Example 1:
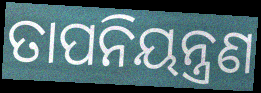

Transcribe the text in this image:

ତାପନିୟନ୍ତ୍ରଣ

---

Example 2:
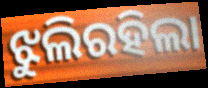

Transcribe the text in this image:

ଝୁଲିରହିଲା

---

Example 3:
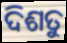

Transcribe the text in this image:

ଦିଶତୁ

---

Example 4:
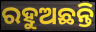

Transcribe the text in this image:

ରହୁଅଛନ୍ତି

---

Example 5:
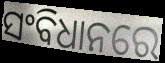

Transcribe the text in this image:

ସଂବିଧାନରେ